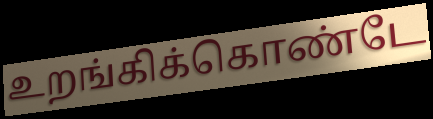
உறங்கிக்கொண்டே